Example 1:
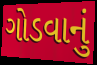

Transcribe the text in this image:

ગોડવાનું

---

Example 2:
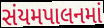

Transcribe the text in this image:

સંયમપાલનમાં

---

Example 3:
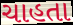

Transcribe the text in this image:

ચાહતા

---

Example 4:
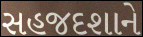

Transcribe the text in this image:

સહજદશાને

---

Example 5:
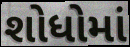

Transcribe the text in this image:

શોધોમાં